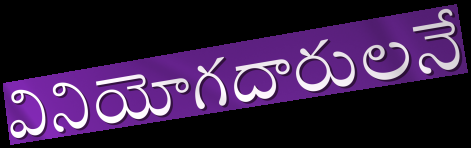
వినియోగదారులనే